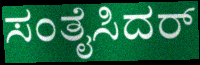
ಸಂತೈಸಿದರ್